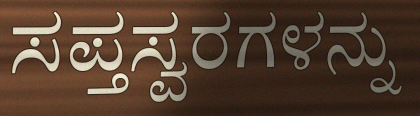
ಸಪ್ತಸ್ವರಗಳನ್ನು